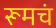
रूमचं